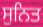
ਸੁਨਿਤ